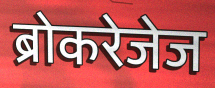
ब्रोकरेजेज